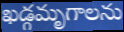
ఖడ్గమృగాలను